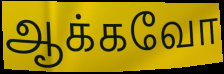
ஆக்கவோ